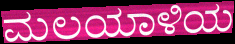
ಮಲಯಾಳಿಯ